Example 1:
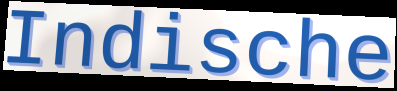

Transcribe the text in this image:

Indische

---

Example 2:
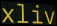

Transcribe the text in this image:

xliv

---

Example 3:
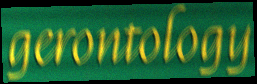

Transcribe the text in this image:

gerontology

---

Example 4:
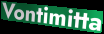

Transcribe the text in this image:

Vontimitta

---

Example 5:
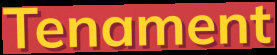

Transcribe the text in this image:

Tenament